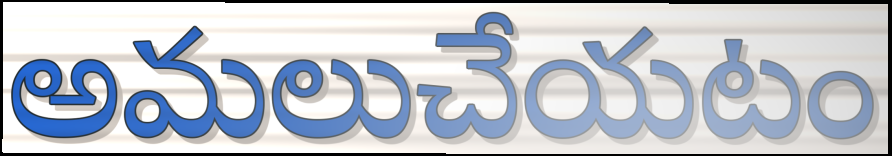
అమలుచేయటం